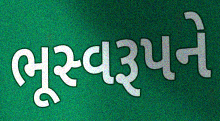
ભૂસ્વરૂપને